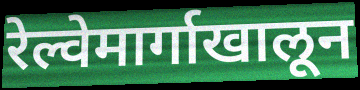
रेल्वेमार्गाखालून